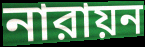
নারায়ন